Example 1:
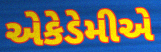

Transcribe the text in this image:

એકેડેમીએ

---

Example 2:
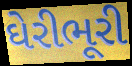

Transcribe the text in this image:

ઘેરીભૂરી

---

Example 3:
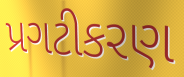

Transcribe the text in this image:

પ્રગટીકરણ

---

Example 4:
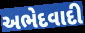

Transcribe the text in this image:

અભેદવાદી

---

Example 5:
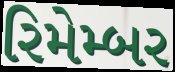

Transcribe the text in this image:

રિમેમ્બર